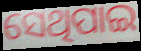
ସେଥିପାଇ